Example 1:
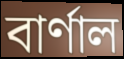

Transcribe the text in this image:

বাৰ্ণাল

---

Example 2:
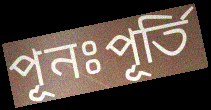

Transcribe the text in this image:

পূনঃপূৰ্তি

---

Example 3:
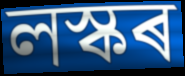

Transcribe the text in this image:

লস্কৰ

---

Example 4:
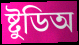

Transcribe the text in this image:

ষ্টুডিঅ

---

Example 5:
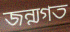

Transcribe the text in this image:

জন্মগত